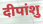
दीपांशु